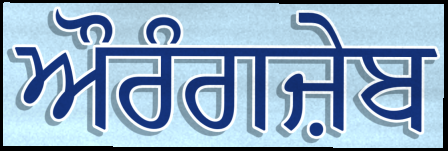
ਔਰੰਗਜ਼ੇਬ